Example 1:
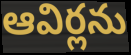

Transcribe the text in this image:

ఆవిర్లను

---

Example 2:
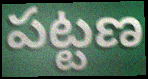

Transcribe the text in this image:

పట్టణ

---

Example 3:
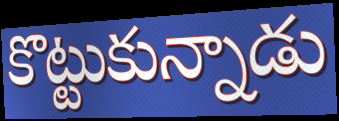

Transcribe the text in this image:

కొట్టుకున్నాడు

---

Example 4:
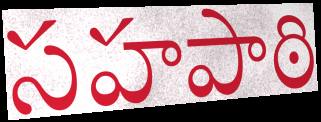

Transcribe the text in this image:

సహపాఠి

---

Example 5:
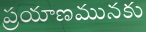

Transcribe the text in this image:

ప్రయాణమునకు